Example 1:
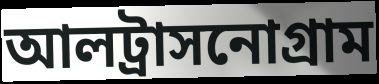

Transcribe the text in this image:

আলট্রাসনোগ্রাম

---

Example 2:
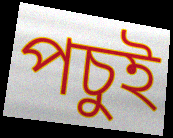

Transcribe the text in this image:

পচুই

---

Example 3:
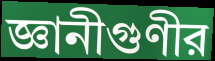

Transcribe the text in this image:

জ্ঞানীগুণীর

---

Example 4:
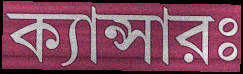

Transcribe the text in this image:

ক্যান্সারঃ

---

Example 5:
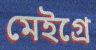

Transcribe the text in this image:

মেইগ্রে